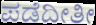
ಪಡೆದೀತೀ